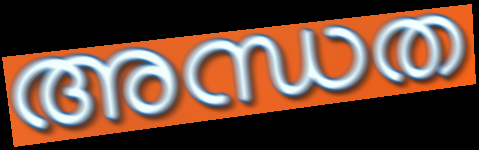
അന്ധത